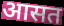
आसत